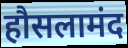
हौसलामंद